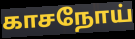
காசநோய்